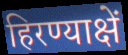
हिरण्याक्षें